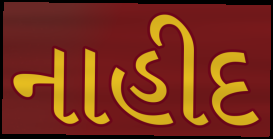
નાહીદ